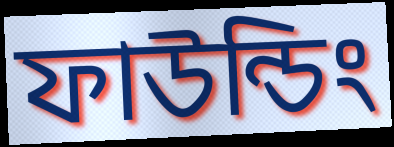
ফাউন্ডিং